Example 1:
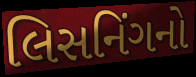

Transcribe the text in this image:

લિસનિંગનો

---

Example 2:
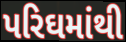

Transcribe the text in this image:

પરિઘમાંથી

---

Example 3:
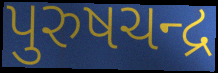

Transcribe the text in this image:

પુરુષચન્દ્ર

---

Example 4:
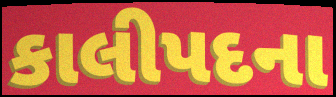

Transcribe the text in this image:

કાલીપદના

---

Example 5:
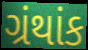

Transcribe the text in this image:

ગ્રંથાંક